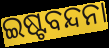
ଇଷ୍ଟବନ୍ଦନା